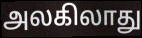
அலகிலாது